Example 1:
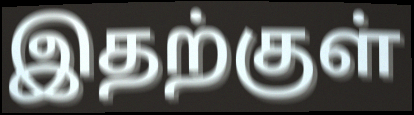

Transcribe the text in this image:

இதற்குள்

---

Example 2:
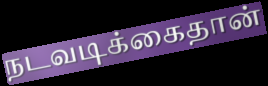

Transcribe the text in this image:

நடவடிக்கைதான்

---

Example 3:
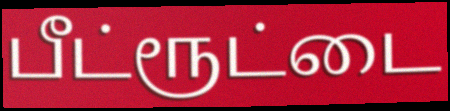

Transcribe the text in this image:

பீட்ரூட்டை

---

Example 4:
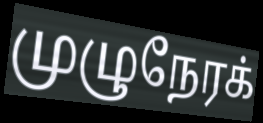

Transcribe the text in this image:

முழுநேரக்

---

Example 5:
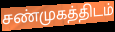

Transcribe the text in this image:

சண்முகத்திடம்